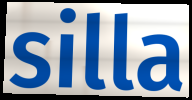
silla